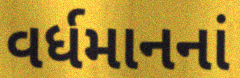
વર્ધમાનનાં